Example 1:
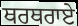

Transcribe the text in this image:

ਥਰਥਰਾਏ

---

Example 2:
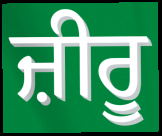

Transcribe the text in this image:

ਜ਼ੀਰੂ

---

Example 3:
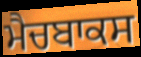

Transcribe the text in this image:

ਮੈਚਬਾਕਸ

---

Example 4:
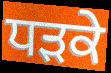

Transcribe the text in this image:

ਧੜਕੇ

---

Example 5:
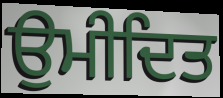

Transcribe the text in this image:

ਉਮੀਦਿਤ